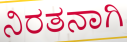
ನಿರತನಾಗಿ